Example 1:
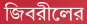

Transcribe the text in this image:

জিবরীলের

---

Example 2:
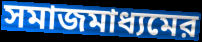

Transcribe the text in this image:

সমাজমাধ্যমের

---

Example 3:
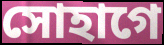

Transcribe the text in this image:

সোহাগে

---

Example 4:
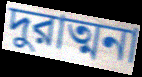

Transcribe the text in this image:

দুরাত্মনা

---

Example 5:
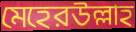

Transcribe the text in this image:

মেহেরউল্লাহ